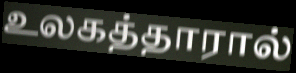
உலகத்தாரால்